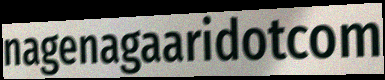
nagenagaaridotcom